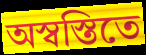
অস্বস্তিতে